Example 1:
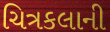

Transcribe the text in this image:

ચિત્રકલાની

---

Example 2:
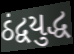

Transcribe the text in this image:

ઠંદ્વયુદ્ધ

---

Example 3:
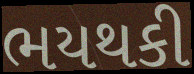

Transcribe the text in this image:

ભયથકી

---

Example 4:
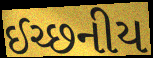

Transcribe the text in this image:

ઈચ્છનીય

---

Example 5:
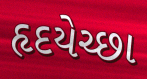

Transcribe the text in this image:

હૃદયેચ્છા